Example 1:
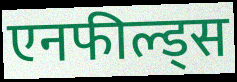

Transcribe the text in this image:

एनफील्ड्स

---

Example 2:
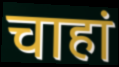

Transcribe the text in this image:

चाहां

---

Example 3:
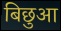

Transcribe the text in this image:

बिछुआ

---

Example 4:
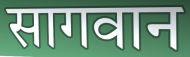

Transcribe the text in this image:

सागवान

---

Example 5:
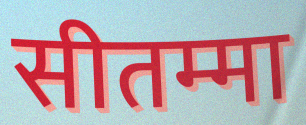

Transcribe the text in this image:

सीतम्मा